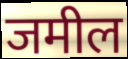
जमील